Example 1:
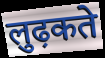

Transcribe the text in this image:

लुढ़कते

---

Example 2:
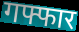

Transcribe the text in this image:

गफ्फार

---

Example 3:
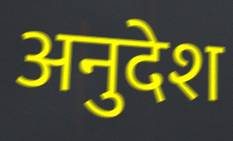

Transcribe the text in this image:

अनुदेश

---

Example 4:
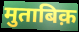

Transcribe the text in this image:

मुताबिक़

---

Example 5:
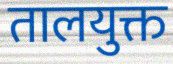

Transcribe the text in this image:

तालयुक्त